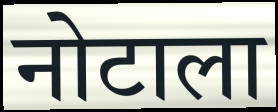
नोटाला